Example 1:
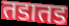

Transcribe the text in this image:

तडातड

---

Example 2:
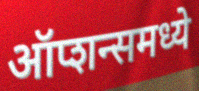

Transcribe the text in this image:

ऑप्शन्समध्ये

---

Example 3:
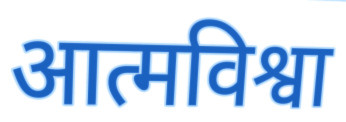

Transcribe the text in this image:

आत्मविश्वा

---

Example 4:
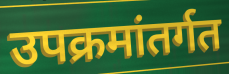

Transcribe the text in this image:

उपक्रमांतर्गत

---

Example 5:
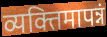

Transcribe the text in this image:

व्यक्तिमापन्नं